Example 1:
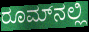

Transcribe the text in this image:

ರೂಮ್‌ನಲ್ಲಿ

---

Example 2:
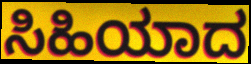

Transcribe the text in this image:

ಸಿಹಿಯಾದ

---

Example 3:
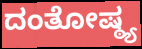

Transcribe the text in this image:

ದಂತೋಷ್ಠ್ಯ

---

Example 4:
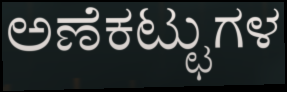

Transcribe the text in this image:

ಅಣೆಕಟ್ಟುಗಳ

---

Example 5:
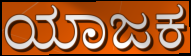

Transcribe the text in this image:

ಯಾಜಕ